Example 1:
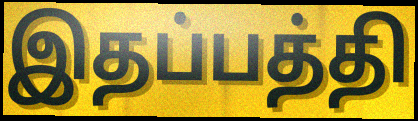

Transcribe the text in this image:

இதப்பத்தி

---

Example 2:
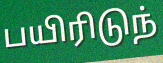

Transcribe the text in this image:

பயிரிடுந்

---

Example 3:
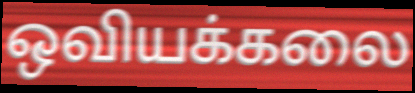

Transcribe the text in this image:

ஒவியக்கலை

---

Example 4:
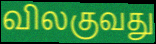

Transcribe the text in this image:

விலகுவது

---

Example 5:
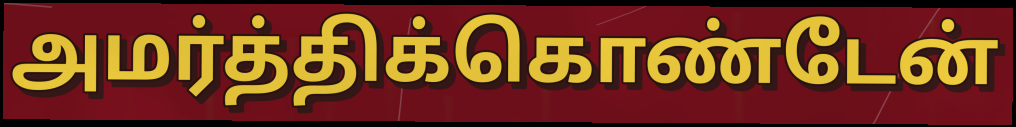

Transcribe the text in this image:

அமர்த்திக்கொண்டேன்